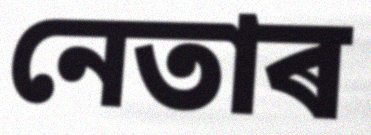
নেতাৰ